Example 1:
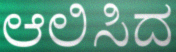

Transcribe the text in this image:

ಆಲಿಸಿದ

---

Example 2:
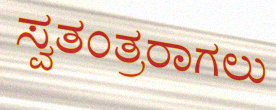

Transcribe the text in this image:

ಸ್ವತಂತ್ರರಾಗಲು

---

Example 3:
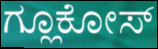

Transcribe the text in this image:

ಗ್ಲೂಕೋಸ್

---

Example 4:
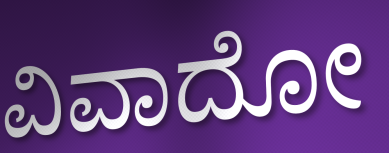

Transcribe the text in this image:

ವಿವಾದೋ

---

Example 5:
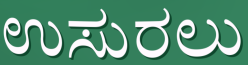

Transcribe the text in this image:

ಉಸುರಲು